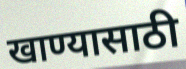
खाण्यासाठी